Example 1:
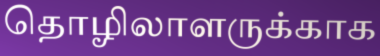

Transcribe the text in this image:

தொழிலாளருக்காக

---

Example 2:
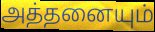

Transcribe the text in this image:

அத்தனையும்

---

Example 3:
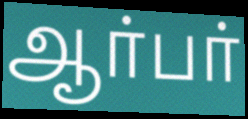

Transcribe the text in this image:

ஆர்பர்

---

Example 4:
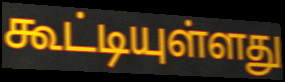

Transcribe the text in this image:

கூட்டியுள்ளது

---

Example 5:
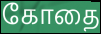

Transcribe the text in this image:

கோதை